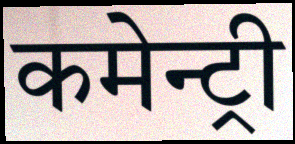
कमेन्ट्री